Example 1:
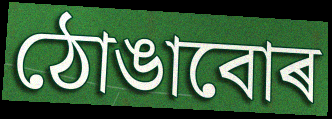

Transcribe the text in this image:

ঠোঙাবোৰ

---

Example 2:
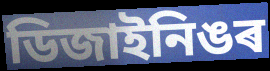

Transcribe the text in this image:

ডিজাইনিঙৰ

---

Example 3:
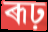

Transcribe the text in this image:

ৰূঢ়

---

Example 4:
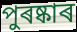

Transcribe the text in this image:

পুৰষ্কাৰ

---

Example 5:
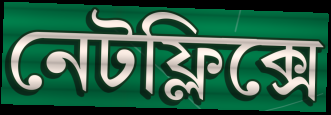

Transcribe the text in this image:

নেটফ্লিক্সে